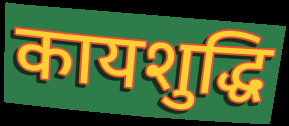
कायशुद्धि